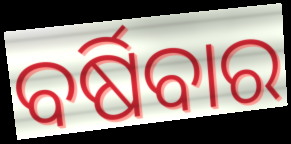
ବର୍ଷିବାର